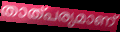
താത്പര്യമാണ്